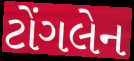
ટોંગલેન